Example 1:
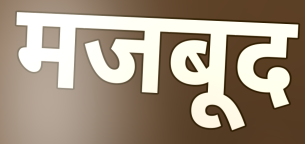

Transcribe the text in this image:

मजबूद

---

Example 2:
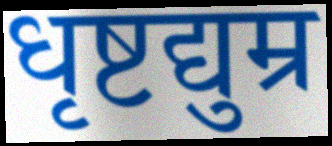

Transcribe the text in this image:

धृष्टद्युम्र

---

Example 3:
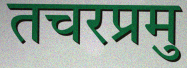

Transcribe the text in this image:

तचरप्रमु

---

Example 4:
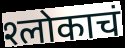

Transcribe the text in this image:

श्लोकाचं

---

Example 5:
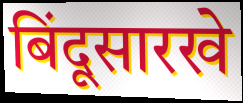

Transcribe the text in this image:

बिंदूसारखे